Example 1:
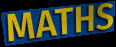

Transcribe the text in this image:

MATHS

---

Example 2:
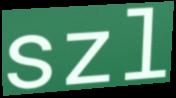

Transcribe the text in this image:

szl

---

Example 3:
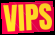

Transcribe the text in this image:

VIPS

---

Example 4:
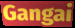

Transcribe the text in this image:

Gangai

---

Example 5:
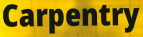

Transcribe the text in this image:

Carpentry